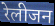
रेलीजन